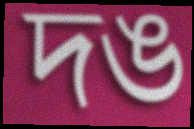
দঙ